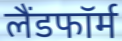
लैंडफॉर्म